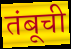
तंबूची